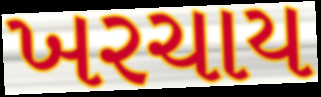
ખરચાય